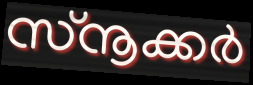
സ്നൂക്കർ